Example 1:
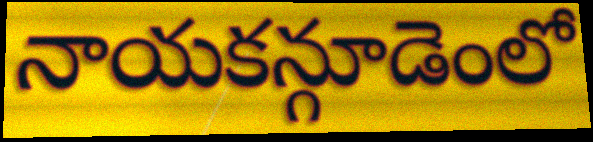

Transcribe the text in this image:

నాయకన్గూడెంలో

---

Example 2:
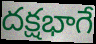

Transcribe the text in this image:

దక్షభాగే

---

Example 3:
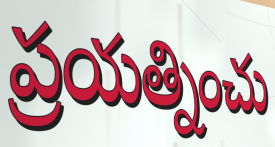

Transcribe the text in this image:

ప్రయత్నించు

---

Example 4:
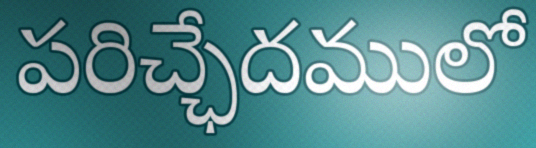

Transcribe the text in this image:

పరిచ్ఛేదములో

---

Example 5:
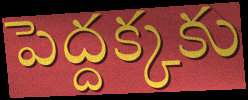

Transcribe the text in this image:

పెద్దక్కకు